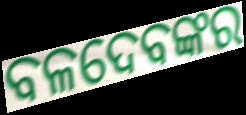
ବଳଦେବଙ୍କର